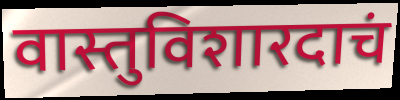
वास्तुविशारदाचं